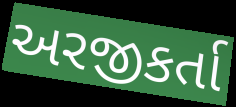
અરજીકર્તા